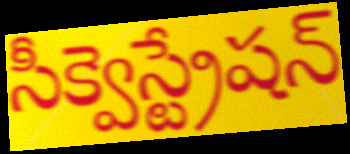
సీక్వెస్ట్రేషన్